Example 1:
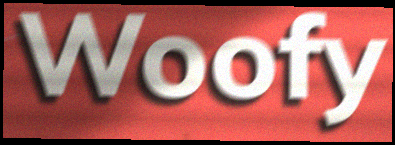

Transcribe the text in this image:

Woofy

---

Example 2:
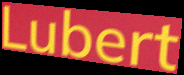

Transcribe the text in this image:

Lubert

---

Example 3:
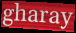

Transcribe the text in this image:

gharay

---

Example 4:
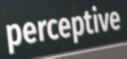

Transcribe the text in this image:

perceptive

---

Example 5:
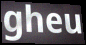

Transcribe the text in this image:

gheu